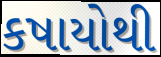
કષાયોથી